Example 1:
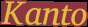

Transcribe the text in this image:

Kanto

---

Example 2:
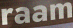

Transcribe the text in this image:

raam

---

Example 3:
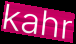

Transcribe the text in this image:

kahr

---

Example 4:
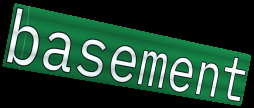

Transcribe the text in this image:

basement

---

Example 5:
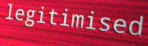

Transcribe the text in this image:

legitimised